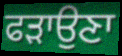
ਫੜਾਉਣਾ